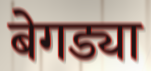
बेगड्या